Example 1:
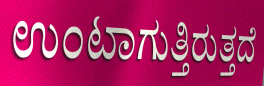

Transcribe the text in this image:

ಉಂಟಾಗುತ್ತಿರುತ್ತದೆ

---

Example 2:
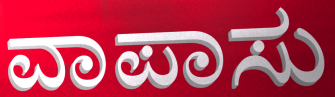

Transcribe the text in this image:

ವಾಪಾಸು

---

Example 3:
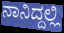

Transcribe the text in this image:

ನಾನಿದ್ದಲ್ಲಿ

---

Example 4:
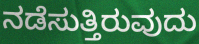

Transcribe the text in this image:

ನಡೆಸುತ್ತಿರುವುದು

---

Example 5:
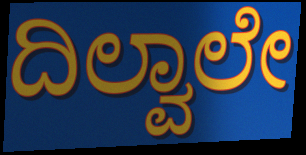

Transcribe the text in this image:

ದಿಲ್ವಾಲೇ